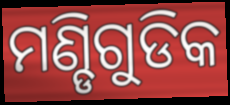
ମଣ୍ଡିଗୁଡିକ